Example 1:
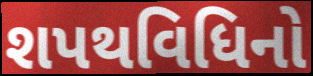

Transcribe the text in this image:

શપથવિધિનો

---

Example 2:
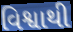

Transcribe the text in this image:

વિશ્વાથી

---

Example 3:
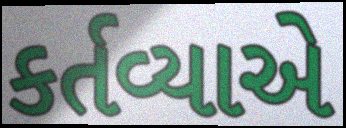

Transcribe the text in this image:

કર્તવ્યાએ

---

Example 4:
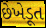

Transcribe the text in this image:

છેખેડૂત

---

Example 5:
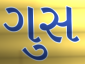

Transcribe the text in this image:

ગુસ